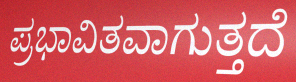
ಪ್ರಭಾವಿತವಾಗುತ್ತದೆ